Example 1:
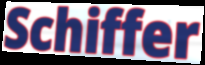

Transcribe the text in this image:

Schiffer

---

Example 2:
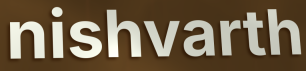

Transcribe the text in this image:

nishvarth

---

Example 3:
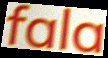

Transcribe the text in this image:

fala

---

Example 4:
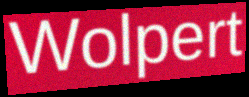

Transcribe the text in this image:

Wolpert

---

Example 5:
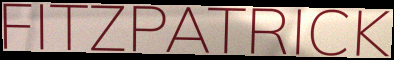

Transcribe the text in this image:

FITZPATRICK